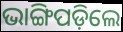
ଭାଙ୍ଗିପଡ଼ିଲେ